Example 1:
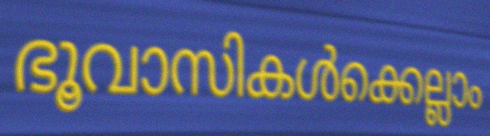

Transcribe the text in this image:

ഭൂവാസികൾക്കെല്ലാം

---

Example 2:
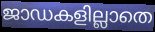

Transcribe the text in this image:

ജാഡകളില്ലാതെ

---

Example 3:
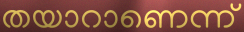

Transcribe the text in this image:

തയാറാണെന്ന്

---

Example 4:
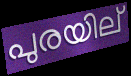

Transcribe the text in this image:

പുരയില്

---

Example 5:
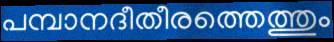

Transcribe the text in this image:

പമ്പാനദീതീരത്തെത്തും